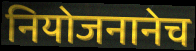
नियोजनानेच